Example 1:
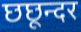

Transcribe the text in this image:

छछून्दर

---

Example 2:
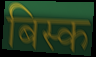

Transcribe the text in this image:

बिस्क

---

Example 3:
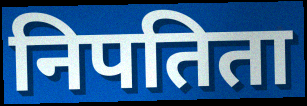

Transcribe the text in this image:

निपतिता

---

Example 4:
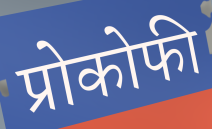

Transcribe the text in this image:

प्रोकोफी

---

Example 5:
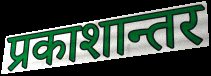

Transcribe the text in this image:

प्रकाशान्तर